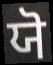
ਯੋ